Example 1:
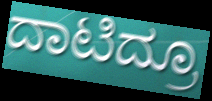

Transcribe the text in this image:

ದಾಟಿದ್ರೂ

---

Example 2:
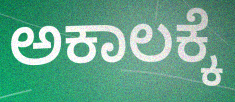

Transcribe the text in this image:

ಅಕಾಲಕ್ಕೆ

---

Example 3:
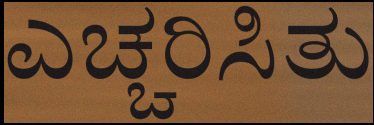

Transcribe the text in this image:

ಎಚ್ಚರಿಸಿತು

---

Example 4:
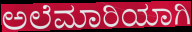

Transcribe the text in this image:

ಅಲೆಮಾರಿಯಾಗಿ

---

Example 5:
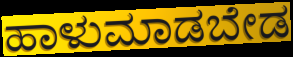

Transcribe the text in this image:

ಹಾಳುಮಾಡಬೇಡ